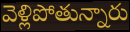
వెళ్లిపోతున్నారు